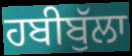
ਹਬੀਬੁੱਲਾ